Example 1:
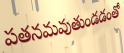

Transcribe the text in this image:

పతనమవుతుండడంతో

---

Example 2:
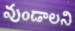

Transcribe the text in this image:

వుండాలని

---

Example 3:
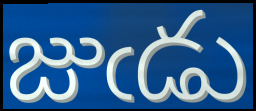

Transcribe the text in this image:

జుఁడు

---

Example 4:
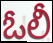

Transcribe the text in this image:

ఓలీ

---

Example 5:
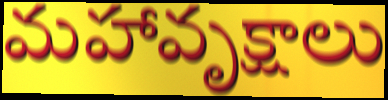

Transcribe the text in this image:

మహావృక్షాలు